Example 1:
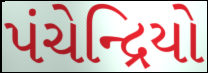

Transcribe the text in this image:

પંચેન્દ્રિયો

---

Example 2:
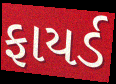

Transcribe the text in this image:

ફાયર્ડ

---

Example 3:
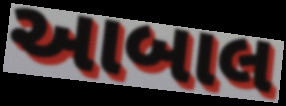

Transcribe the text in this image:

આબાલ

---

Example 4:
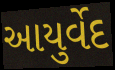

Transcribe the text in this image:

આયુર્વેદ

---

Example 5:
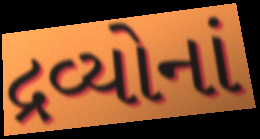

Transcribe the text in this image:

દ્રવ્યોનાં